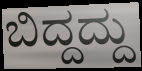
ಬಿದ್ದದ್ದು